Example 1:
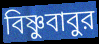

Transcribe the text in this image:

বিষ্ণুবাবুর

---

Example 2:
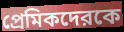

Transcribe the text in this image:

প্রেমিকদেরকে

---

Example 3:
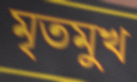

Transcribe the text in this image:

মৃতমুখ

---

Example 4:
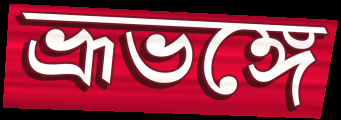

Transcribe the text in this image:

ভ্রূভঙ্গে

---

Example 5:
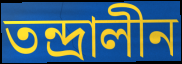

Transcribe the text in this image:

তন্দ্রালীন